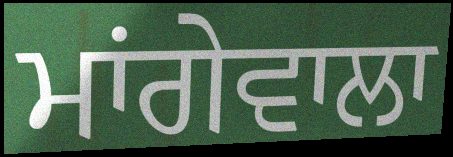
ਮਾਂਗੇਵਾਲਾ